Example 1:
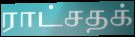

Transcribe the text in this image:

ராட்சதக்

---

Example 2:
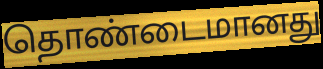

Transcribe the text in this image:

தொண்டைமானது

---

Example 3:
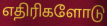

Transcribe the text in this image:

எதிரிகளோடு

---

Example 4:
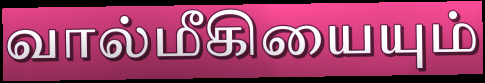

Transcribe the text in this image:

வால்மீகியையும்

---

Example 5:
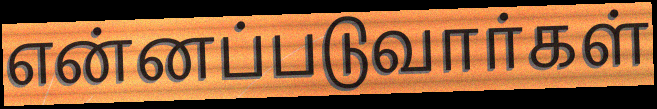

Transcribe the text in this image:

என்னப்படுவார்கள்